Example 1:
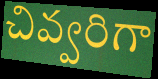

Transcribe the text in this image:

చివ్వరిగా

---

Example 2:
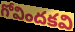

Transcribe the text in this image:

గోవిందకవి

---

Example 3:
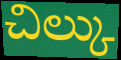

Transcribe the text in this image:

చిల్కు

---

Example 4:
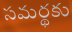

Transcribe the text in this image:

సమర్థకు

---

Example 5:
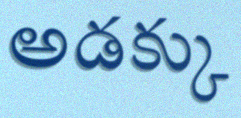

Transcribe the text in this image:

అడక్కు